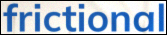
frictional